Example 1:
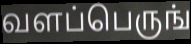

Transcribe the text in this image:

வளப்பெருங்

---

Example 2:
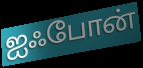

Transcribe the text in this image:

ஐஃபோன்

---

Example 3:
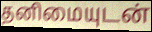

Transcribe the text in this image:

தனிமையுடன்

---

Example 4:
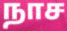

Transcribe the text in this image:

நாச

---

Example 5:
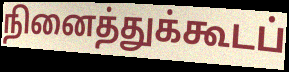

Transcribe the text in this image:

நினைத்துக்கூடப்